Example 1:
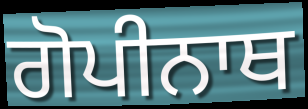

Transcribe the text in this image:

ਗੋਪੀਨਾਥ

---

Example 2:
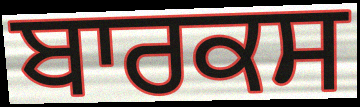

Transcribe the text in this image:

ਬਾਰਕਸ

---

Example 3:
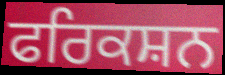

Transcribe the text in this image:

ਫਰਿਕਸ਼ਨ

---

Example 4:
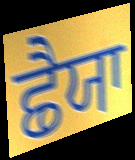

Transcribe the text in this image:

ਛੈਯਾ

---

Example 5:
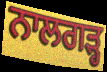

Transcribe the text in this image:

ਨਾਲਗੜ੍ਹ